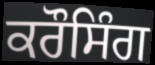
ਕਰੌਸਿੰਗ